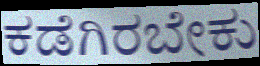
ಕಡೆಗಿರಬೇಕು